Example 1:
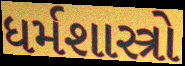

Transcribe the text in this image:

ધર્મશાસ્ત્રો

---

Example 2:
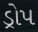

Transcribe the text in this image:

ડ્રોપ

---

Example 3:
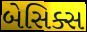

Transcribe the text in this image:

બેસિક્સ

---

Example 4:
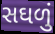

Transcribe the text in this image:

સઘળું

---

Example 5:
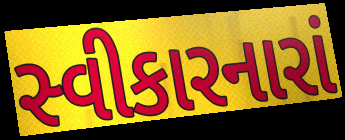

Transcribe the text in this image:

સ્વીકારનારાં